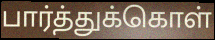
பார்த்துக்கொள்